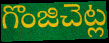
గొంజిచెట్ల